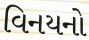
વિનયનો